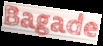
Bagade